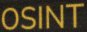
OSINT